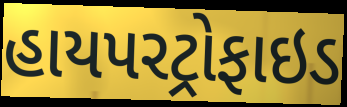
હાયપરટ્રોફાઇડ